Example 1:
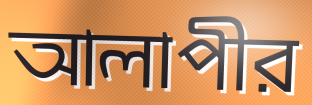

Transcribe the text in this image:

আলাপীর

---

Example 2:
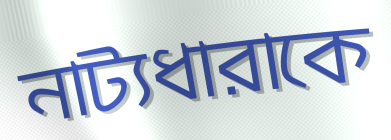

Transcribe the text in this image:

নাট্যধারাকে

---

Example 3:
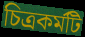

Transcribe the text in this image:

চিত্রকর্মটি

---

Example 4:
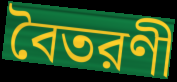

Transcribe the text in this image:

বৈতরণী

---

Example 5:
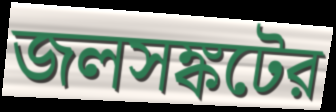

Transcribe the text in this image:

জলসঙ্কটের